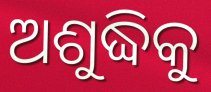
ଅଶୁଦ୍ଧିକୁ